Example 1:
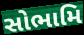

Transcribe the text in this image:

સોભામિ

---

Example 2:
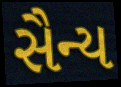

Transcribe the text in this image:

સૈન્ય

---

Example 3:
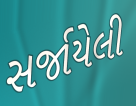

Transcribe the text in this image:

સર્જાયેલી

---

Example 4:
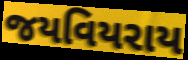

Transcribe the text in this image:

જયવિયરાય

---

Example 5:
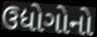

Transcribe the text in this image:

ઉદ્યોગોનો